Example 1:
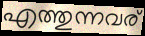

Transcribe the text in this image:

എത്തുന്നവര്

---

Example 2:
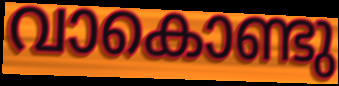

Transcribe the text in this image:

വാകൊണ്ടു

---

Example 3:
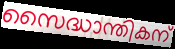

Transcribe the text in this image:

സൈദ്ധാന്തികന്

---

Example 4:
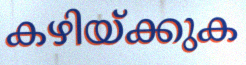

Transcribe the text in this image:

കഴിയ്ക്കുക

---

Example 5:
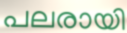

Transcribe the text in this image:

പലരായി